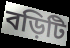
বড়িটি